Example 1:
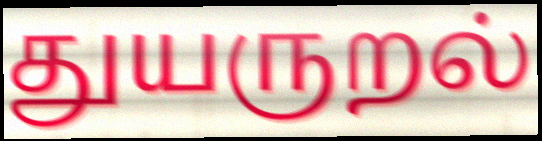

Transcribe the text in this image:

துயருறல்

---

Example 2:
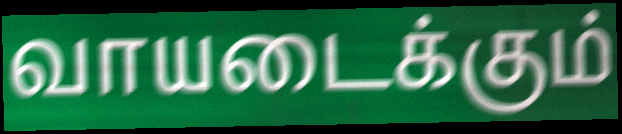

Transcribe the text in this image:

வாயடைக்கும்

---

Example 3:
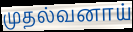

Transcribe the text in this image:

முதல்வனாய்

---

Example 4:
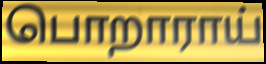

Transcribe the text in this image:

பொறாராய்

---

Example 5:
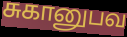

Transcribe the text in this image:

சுகானுபவ